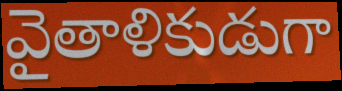
వైతాళికుడుగా